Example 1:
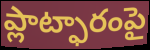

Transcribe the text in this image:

ప్లాట్ఫారంపై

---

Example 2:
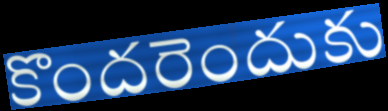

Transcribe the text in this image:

కొందరెందుకు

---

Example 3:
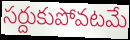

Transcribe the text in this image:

సర్దుకుపోవటమే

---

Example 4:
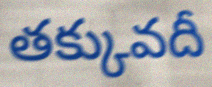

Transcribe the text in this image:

తక్కువదీ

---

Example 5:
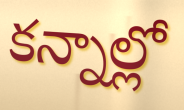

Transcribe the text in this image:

కన్నాల్లో